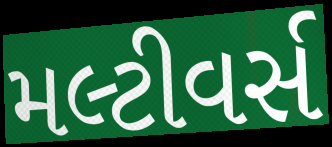
મલ્ટીવર્સ